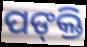
ପଙ୍‍କ୍ତି